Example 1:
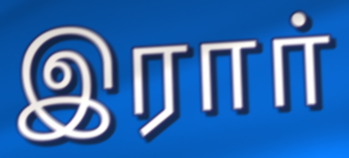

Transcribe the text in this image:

இரார்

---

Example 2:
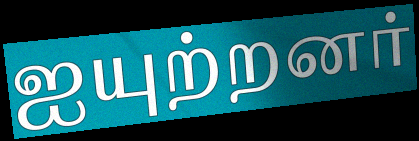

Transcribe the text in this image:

ஐயுற்றனர்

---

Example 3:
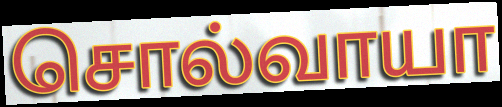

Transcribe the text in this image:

சொல்வாயா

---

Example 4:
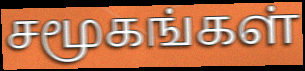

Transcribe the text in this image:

சமூகங்கள்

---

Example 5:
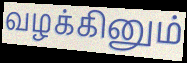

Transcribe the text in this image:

வழக்கினும்